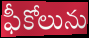
ఫీకోలును